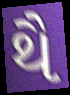
થૈ